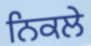
ਨਿਕਲੇ